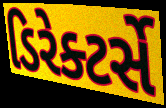
ડિરેક્ટર્સે